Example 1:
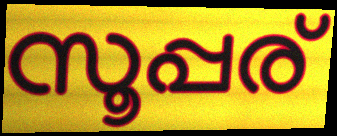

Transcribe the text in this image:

സൂപ്പര്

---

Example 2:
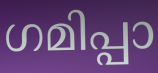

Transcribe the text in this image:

ഗമിപ്പാ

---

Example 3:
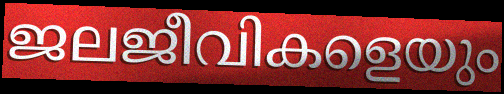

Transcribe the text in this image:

ജലജീവികളെയും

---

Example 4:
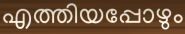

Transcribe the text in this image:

എത്തിയപ്പോഴും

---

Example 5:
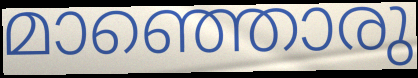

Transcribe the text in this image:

മാഞ്ഞൊരു